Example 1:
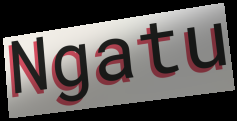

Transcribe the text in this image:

Ngatu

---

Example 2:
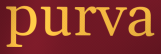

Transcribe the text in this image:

purva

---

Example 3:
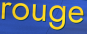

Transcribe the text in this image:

rouge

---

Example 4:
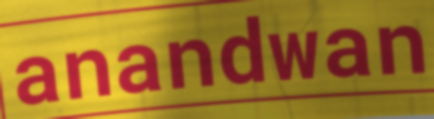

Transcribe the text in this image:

anandwan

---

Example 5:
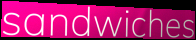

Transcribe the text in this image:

sandwiches